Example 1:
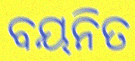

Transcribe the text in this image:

ବୟନିତ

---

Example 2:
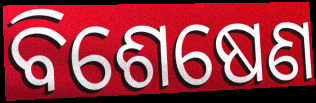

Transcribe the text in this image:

ବିଶେଷେଣ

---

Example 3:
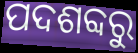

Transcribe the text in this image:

ପଦଶବ୍ଦରୁ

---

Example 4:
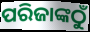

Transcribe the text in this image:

ପରିଜାଙ୍କଠୁଁ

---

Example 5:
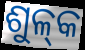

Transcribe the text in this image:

ଶୁଳ୍‌କ